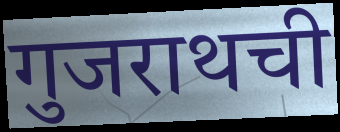
गुजराथची